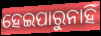
ହେଇପାରୁନାହିଁ